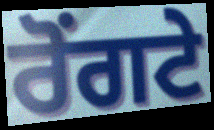
ਰੋੰਗਟੇ